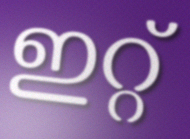
ഇറ്റ്